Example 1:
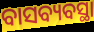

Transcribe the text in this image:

ବାସବ୍ୟବସ୍ଥା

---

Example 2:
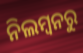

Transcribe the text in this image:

ନିଲମ୍ବନରୁ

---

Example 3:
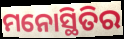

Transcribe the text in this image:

ମନୋସ୍ଥିତିର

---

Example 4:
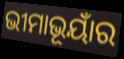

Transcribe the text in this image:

ଭୀମାଭୂୟାଁର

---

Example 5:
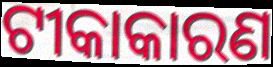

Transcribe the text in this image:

ଟୀକାକାରଣ